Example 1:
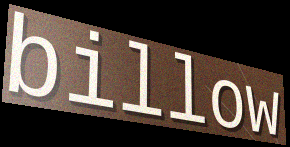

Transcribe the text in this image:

billow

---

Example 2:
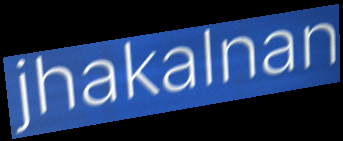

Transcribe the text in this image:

jhakalnan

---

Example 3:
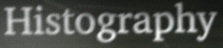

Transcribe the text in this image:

Histography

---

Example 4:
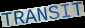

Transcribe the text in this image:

TRANSIT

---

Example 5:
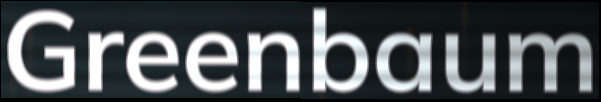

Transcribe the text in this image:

Greenbaum